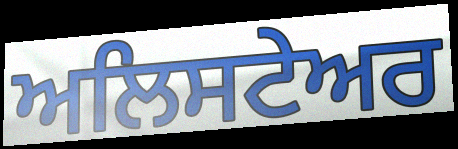
ਅਲਿਸਟੇਅਰ